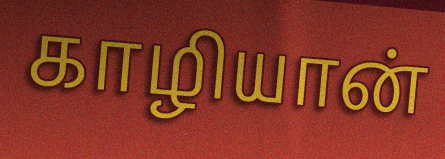
காழியான்